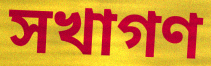
সখাগণ